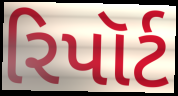
રિપૉર્ટ